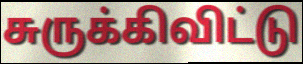
சுருக்கிவிட்டு